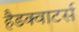
हैडक्वाटर्स